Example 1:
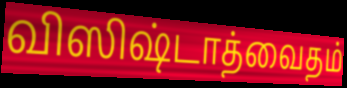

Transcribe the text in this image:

விஸிஷ்டாத்வைதம்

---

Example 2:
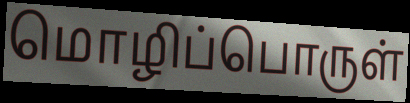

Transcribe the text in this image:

மொழிப்பொருள்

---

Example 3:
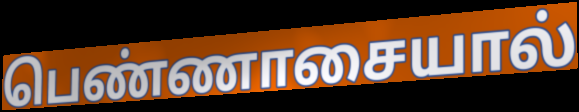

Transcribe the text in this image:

பெண்ணாசையால்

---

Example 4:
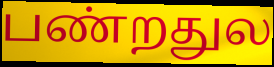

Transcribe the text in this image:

பண்றதுல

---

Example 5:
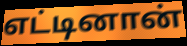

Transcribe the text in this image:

எட்டினான்